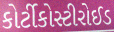
કોર્ટીકોસ્ટીરોઈડ